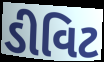
ડીવિટ